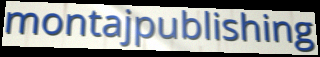
montajpublishing